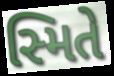
સ્મિતે